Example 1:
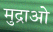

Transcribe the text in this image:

मुद्राओ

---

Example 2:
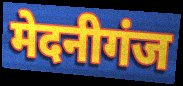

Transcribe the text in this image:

मेदनीगंज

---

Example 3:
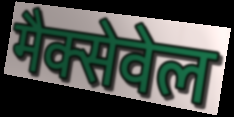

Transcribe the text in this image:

मैक्सेवेल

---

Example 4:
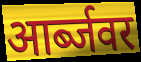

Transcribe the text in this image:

आर्ब्जवर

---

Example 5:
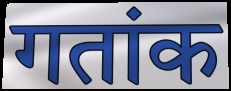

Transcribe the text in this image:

गतांक